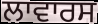
ਲਾਵਾਰਸ